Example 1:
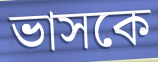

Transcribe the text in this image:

ভাসকে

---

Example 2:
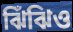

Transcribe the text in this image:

ঝিঁঝিও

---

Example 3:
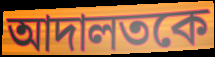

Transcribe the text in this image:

আদালতকে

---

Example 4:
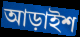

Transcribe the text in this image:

আড়াইশ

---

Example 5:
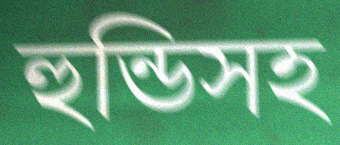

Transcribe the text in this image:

হুন্ডিসহ